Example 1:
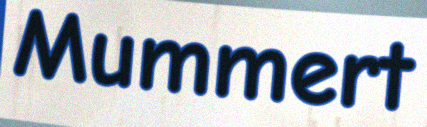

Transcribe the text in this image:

Mummert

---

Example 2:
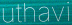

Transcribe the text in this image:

uthavi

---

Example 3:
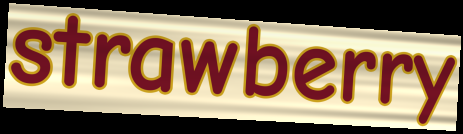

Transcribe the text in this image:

strawberry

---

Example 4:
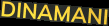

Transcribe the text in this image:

DINAMANI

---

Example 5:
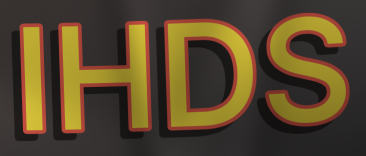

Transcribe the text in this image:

IHDS